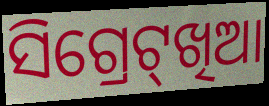
ସିଗ୍ରେଟ୍‌ଖିଆ